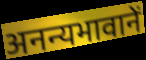
अनन्यभावानें